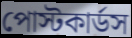
পোস্টকার্ডস